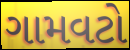
ગામવટો